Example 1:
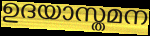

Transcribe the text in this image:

ഉദയാസ്തമന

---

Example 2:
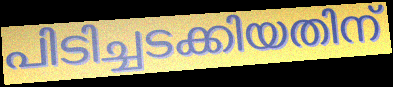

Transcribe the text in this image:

പിടിച്ചടക്കിയതിന്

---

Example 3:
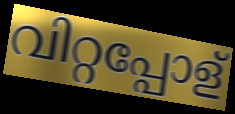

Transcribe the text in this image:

വിറ്റപ്പോള്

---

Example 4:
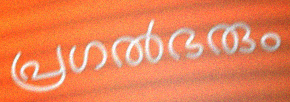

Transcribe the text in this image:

പ്രഗൽഭരും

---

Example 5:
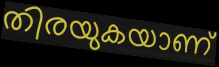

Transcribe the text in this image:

തിരയുകയാണ്